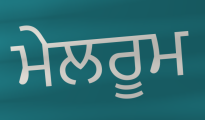
ਮੇਲਰੂਮ